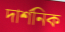
দাৰ্শনিক